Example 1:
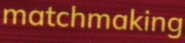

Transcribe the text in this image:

matchmaking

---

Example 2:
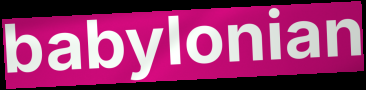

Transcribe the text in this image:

babylonian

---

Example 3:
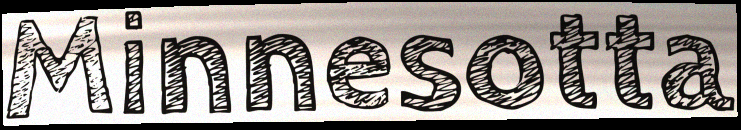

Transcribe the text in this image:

Minnesotta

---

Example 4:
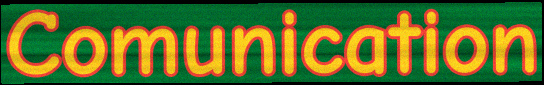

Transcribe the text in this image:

Comunication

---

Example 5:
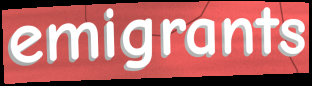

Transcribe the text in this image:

emigrants